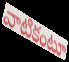
వాటికంటూ